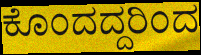
ಕೊಂದದ್ದರಿಂದ